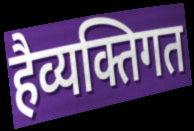
हैव्यक्तिगत